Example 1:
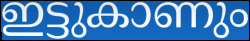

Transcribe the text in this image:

ഇട്ടുകാണും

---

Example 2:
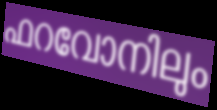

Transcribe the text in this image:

ഫറവോനിലും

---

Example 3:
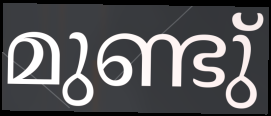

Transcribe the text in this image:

മുണ്ടു്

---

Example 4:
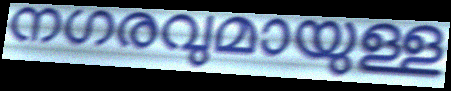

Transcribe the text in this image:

നഗരവുമായുള്ള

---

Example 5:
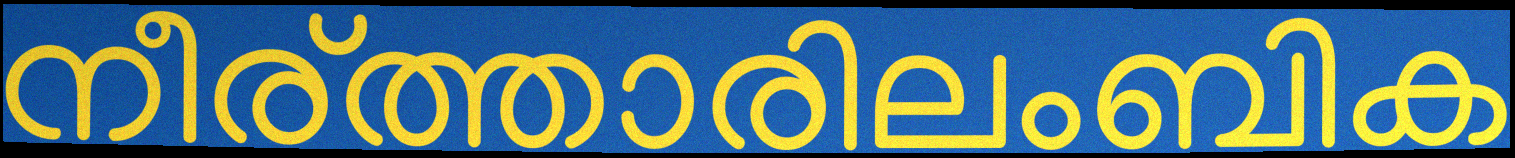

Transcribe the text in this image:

നീര്ത്താരിലംബിക